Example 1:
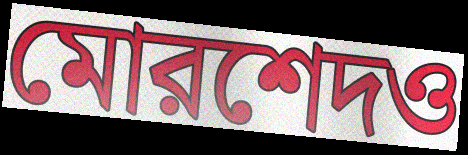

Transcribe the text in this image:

মোরশেদও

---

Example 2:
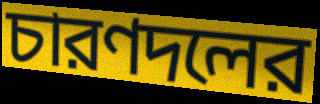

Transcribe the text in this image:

চারণদলের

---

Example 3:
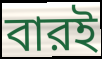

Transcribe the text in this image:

বারই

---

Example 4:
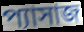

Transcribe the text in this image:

প্যাসাজ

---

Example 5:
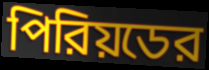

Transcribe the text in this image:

পিরিয়ডের